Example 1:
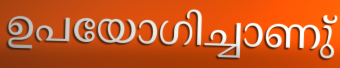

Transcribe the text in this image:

ഉപയോഗിച്ചാണു്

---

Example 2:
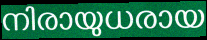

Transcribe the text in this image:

നിരായുധരായ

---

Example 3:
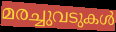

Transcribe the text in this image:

മരച്ചുവടുകൾ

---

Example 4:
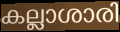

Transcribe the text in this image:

കല്ലാശാരി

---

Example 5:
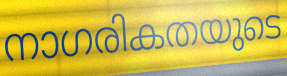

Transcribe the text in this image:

നാഗരികതയുടെ